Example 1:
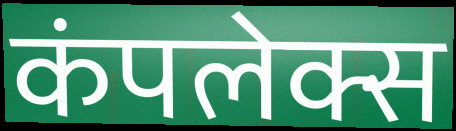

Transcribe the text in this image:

कंपलेक्स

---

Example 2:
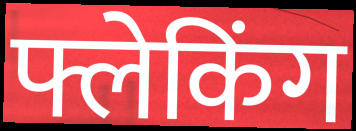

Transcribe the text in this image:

फ्लेकिंग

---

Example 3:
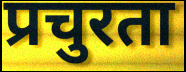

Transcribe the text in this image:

प्रचुरता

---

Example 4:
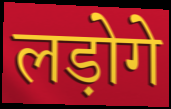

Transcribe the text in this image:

लड़ोगे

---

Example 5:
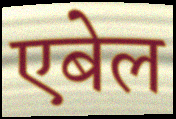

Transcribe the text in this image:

एबेल